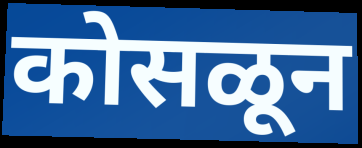
कोसळून